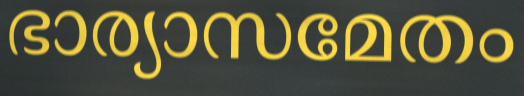
ഭാര്യാസമേതം